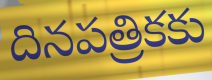
దినపత్రికకు